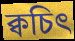
ক্বচিৎ